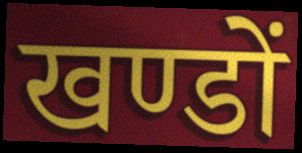
खण्डों